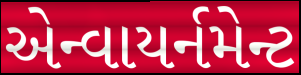
એન્વાયર્નમેન્ટ